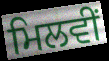
ਮਿਲਵੀਂ